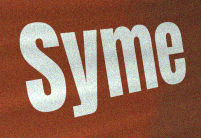
Syme